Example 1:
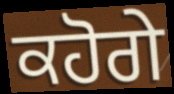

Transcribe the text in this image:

ਕਹੋਗੇ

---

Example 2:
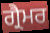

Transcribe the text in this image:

ਗ੍ਰੈਮਰ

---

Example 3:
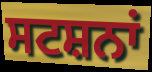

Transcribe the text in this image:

ਸਟਸ਼ਨਾਂ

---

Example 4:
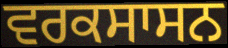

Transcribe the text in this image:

ਵਰਕਸਾਸਨ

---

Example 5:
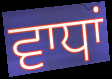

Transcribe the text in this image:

ਵਾਧਾਂ